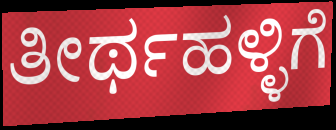
ತೀರ್ಥಹಳ್ಳಿಗೆ